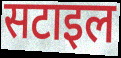
सटाइल